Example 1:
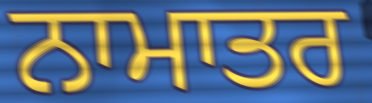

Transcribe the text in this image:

ਨਾਮਾਤਰ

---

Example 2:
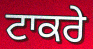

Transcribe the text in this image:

ਟਾਕਰੇ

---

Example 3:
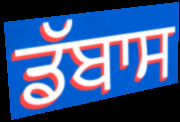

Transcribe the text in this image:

ਡੱਬਾਸ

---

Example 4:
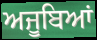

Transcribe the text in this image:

ਅਜੂਬਿਆਂ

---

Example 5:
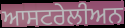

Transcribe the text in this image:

ਆਸਟਰੇਲੀਅਨ